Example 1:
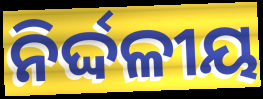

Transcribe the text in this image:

ନିର୍ଦ୍ଦଳୀୟ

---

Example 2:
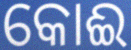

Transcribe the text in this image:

କୋଈ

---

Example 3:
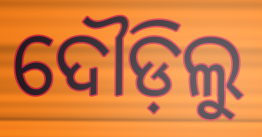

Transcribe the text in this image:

ଦୌଡ଼ିଲୁ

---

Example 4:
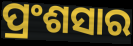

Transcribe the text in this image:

ପ୍ରଂଶସାର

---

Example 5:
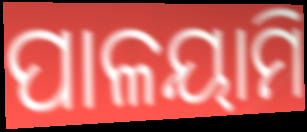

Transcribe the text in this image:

ପାଳୟାମି